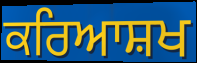
ਕਰਿਆਸ਼ਖ